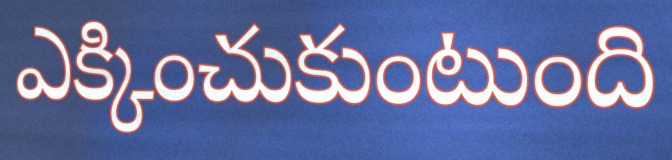
ఎక్కించుకుంటుంది